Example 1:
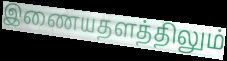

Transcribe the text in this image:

இணையதளத்திலும்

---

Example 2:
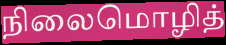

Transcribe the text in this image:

நிலைமொழித்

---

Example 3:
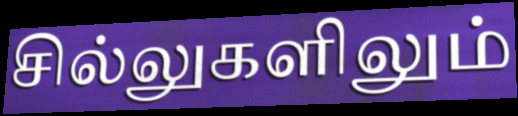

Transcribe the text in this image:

சில்லுகளிலும்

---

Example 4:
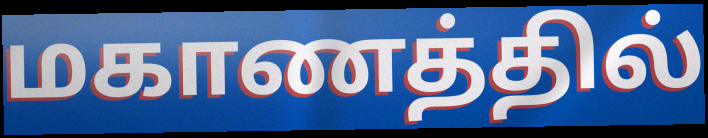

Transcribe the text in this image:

மகாணத்தில்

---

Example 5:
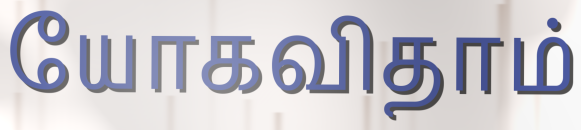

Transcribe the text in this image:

யோகவிதாம்